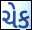
ચેક